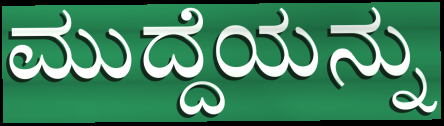
ಮುದ್ದೆಯನ್ನು